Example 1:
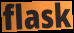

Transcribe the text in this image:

flask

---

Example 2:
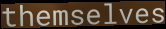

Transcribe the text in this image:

themselves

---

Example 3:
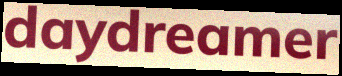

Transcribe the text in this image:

daydreamer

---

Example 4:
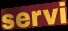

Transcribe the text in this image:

servi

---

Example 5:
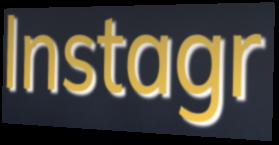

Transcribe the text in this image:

Instagr